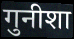
गुनीशा